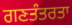
ਗਣਤੰਤਰਤਾ